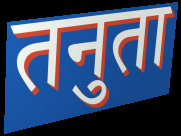
तनुता